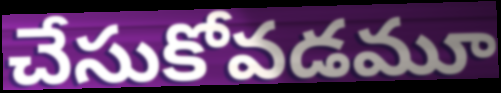
చేసుకోవడమూ